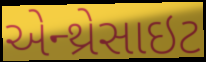
એન્થ્રેસાઇટ